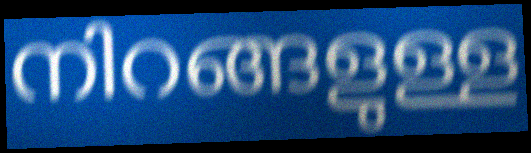
നിറങ്ങളുള്ള